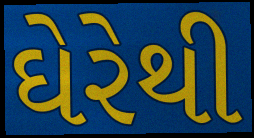
ઘેરેથી